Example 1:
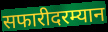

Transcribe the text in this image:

सफारीदरम्यान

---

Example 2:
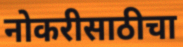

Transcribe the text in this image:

नोकरीसाठीचा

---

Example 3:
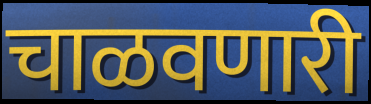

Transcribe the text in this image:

चाळवणारी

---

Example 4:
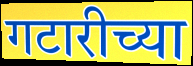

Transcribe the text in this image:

गटारीच्या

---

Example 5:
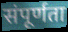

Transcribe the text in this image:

संपूर्णता